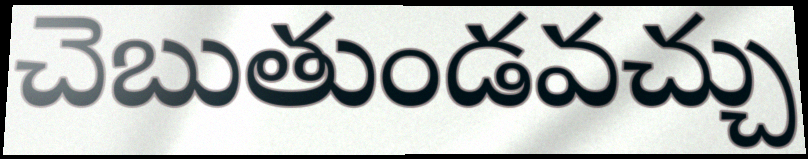
చెబుతుండవచ్చు